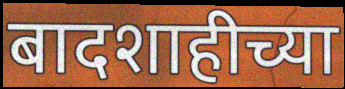
बादशाहीच्या